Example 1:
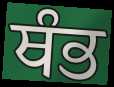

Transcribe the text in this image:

ਥੰਭ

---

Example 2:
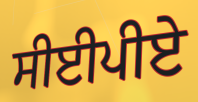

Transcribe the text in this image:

ਸੀਈਪੀਏ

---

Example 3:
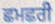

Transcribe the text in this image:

ਛਮਛਰੀ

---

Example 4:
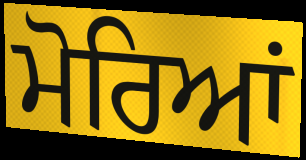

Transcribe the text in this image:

ਮੋਰਿਆਂ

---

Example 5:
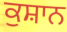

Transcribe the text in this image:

ਕੁਸ਼ਾਨ